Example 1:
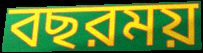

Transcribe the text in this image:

বছরময়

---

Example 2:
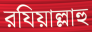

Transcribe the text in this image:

রযিয়াল্লাহু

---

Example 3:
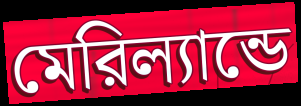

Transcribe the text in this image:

মেরিল্যান্ডে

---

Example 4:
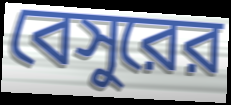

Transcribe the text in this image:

বেসুরের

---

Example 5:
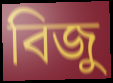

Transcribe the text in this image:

বিজু